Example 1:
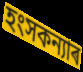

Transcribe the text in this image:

হংসকন্যাৰ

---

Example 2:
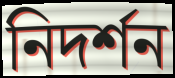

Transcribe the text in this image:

নিদৰ্শন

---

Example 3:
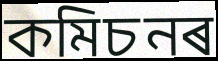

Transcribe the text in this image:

কমিচনৰ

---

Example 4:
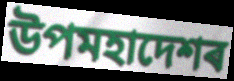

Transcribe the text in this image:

উপমহাদেশৰ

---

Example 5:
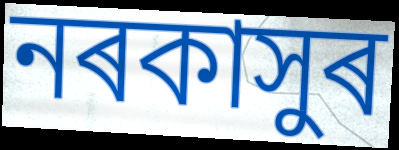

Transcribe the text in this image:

নৰকাসুৰ